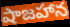
షాజహాన